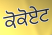
ਕੋਕੋਏਟ